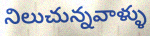
నిలుచున్నవాళ్ళు